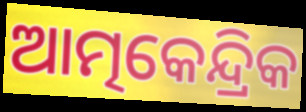
ଆତ୍ମକେନ୍ଦ୍ରିକ